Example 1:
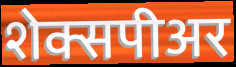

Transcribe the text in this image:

शेक्सपीअर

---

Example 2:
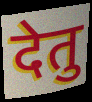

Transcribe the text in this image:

देतु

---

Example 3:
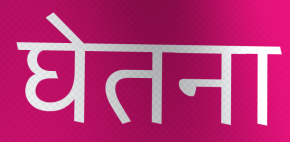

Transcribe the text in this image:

घेतना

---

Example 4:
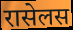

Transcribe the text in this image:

रासेलस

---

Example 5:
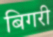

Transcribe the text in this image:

बिगरी